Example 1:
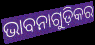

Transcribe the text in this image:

ଭାବନାଗୁଡ଼ିକର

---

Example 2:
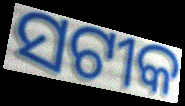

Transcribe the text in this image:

ସଟୀକ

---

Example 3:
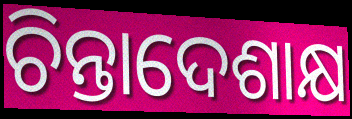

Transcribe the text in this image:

ଚିନ୍ତାଦେଶାକ୍ଷ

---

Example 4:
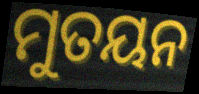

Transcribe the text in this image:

ମୁତୟନ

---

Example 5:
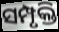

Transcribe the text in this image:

ସମ୍ପୃକ୍ତି